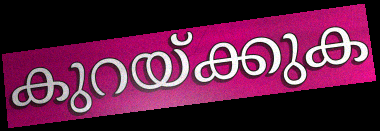
കുറയ്ക്കുക